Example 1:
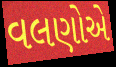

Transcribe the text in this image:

વલણોએ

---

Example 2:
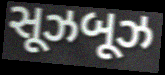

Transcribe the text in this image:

સૂઝબૂઝ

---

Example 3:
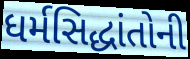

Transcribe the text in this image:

ધર્મસિદ્ધાંતોની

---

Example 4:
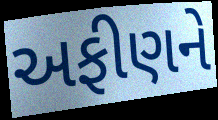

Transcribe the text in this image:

અફીણને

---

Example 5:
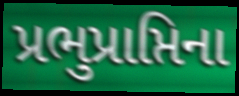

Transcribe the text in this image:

પ્રભુપ્રાપ્તિના